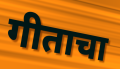
गीताचा